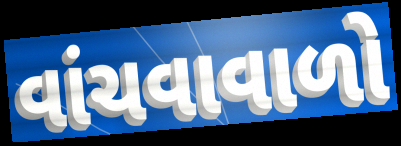
વાંચવાવાળો